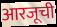
आरजूची